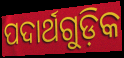
ପଦାର୍ଥଗୁଡ଼ିକ